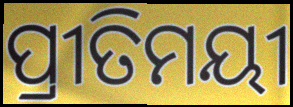
ପ୍ରୀତିମୟୀ